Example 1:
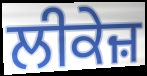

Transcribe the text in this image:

ਲੀਕੇਜ਼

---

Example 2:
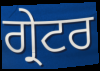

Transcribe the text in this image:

ਗ੍ਰੇਟਰ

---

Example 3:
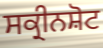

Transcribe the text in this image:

ਸਕ੍ਰੀਨਸ਼ੋਟ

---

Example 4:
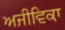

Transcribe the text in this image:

ਅਜੀਵਿਕਾ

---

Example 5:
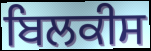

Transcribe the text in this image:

ਬਿਲਕੀਸ